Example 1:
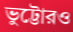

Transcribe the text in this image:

ভুট্টোরও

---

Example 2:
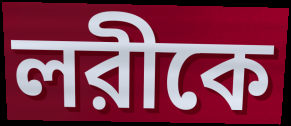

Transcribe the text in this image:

লরীকে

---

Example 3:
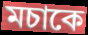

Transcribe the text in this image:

মচাকে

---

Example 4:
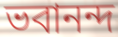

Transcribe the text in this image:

ভবানন্দ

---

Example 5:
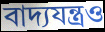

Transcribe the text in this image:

বাদ্যযন্ত্রও